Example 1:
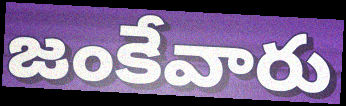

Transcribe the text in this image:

జంకేవారు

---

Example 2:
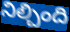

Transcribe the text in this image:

నిల్చింది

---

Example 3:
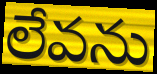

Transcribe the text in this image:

లేవను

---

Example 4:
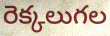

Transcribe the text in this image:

రెక్కలుగల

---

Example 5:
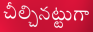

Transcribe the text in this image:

చీల్చినట్టుగా